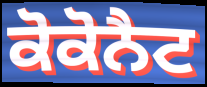
ਕੋਕੋਨੈਟ